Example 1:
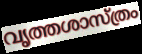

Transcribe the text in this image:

വൃത്തശാസ്ത്രം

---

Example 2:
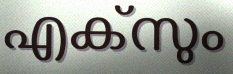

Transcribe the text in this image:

എക്‌സും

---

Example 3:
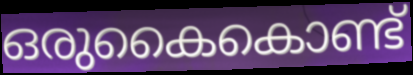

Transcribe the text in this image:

ഒരുകൈകൊണ്ട്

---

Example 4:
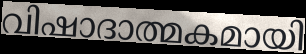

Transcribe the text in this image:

വിഷാദാത്മകമായി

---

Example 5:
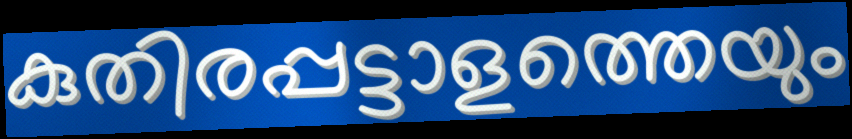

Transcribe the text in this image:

കുതിരപ്പട്ടാളത്തെയും